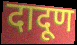
दादूण